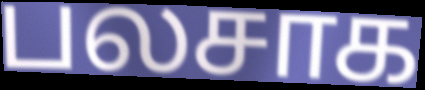
பலசாக